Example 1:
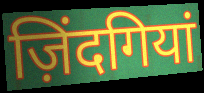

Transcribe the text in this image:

ज़िंदगियां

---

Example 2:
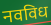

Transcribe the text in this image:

नवविध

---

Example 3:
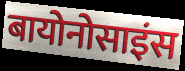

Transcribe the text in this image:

बायोनोसाइंस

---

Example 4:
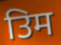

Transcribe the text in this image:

उिम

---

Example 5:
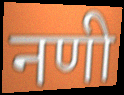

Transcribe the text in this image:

नणी